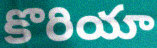
కొరియా